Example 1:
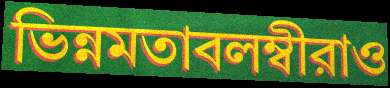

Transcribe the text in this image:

ভিন্নমতাবলম্বীরাও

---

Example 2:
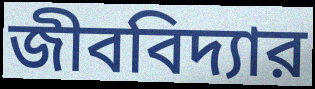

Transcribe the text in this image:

জীববিদ্যার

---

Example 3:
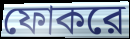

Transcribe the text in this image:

ফোকরে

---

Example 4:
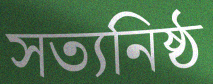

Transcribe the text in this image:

সত্যনিষ্ঠ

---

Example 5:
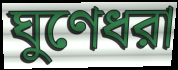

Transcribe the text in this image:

ঘুণেধরা